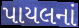
પાયલનાં